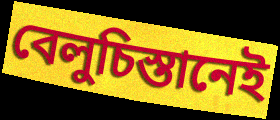
বেলুচিস্তানেই